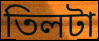
তিলটা